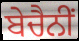
ਬੇਚੈਨੀਂ